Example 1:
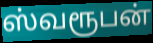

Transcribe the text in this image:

ஸ்வரூபன்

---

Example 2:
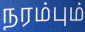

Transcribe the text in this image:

நரம்பும்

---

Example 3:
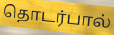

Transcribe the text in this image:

தொடர்பால்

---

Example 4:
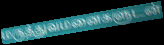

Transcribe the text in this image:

மருத்துவமனைகளுடன்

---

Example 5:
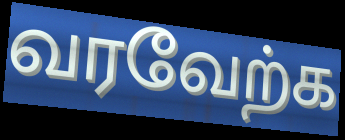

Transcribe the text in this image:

வரவேற்க